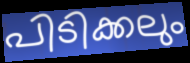
പിടിക്കലും